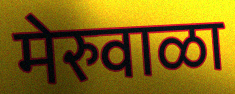
मेरुवाळा